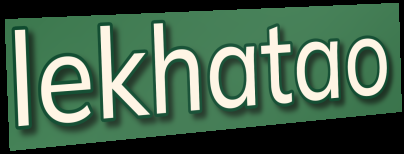
lekhatao